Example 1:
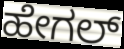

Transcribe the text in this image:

ಹೇಗಲ್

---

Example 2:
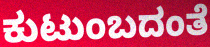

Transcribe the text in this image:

ಕುಟುಂಬದಂತೆ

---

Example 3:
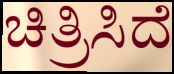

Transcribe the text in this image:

ಚಿತ್ರಿಸಿದೆ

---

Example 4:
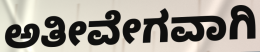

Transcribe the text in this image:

ಅತೀವೇಗವಾಗಿ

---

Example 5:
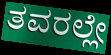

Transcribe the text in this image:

ತವರಲ್ಲೇ